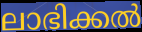
ലാഭിക്കൽ